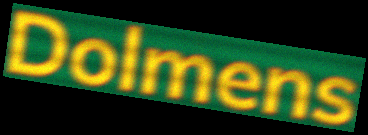
Dolmens